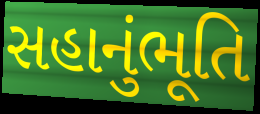
સહાનુંભૂતિ